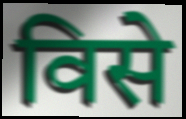
विसे